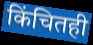
किंचितही